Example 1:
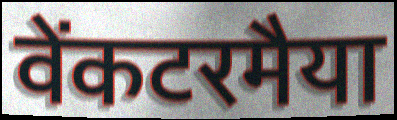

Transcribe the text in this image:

वेंकटरमैया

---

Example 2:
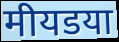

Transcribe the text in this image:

मीयडया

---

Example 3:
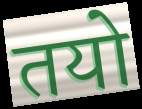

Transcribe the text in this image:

तयो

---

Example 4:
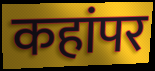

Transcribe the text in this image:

कहांपर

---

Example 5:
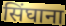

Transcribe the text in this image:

सिंघाना